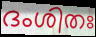
ദംശിതഃ